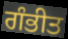
ਗੰਭੀਤ